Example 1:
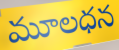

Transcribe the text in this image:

మూలధన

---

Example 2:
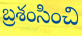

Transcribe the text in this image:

బ్రశంసించి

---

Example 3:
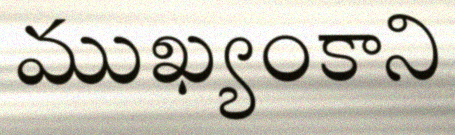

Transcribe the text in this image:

ముఖ్యంకాని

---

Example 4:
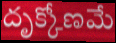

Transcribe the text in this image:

దృక్కోణమే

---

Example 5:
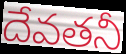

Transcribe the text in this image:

దేవతనీ